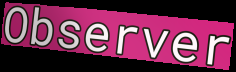
Observer